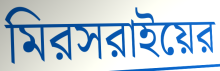
মিরসরাইয়ের